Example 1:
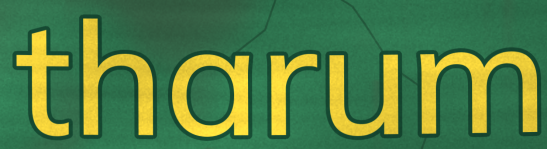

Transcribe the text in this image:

tharum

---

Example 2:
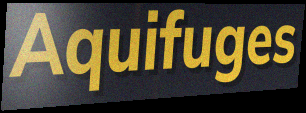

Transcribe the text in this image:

Aquifuges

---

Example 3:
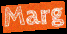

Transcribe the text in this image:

Marg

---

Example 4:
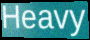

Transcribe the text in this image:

Heavy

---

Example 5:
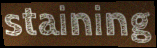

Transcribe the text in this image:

staining